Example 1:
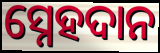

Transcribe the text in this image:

ସ୍ନେହଦାନ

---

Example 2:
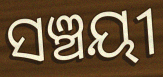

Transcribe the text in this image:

ସଞ୍ଚୟୀ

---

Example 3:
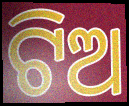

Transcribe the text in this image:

ଟିଅ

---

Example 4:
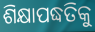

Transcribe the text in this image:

ଶିକ୍ଷାପଦ୍ଧତିକୁ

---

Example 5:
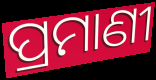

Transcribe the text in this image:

ପ୍ରମାଣୀ